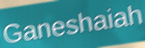
Ganeshaiah